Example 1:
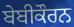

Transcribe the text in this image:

ਬੇਬੀਕੌਰਨ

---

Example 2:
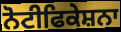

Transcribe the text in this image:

ਨੋਟੀਫਿਕੇਸ਼ਨਾ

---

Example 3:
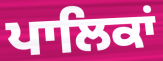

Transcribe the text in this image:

ਪਾਲਿਕਾਂ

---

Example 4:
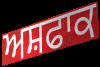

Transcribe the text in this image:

ਅਸ਼ਫਾਕ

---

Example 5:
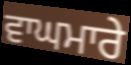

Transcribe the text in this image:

ਵਾਘਮਾਰੇ